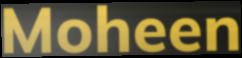
Moheen